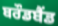
ਬਰੌਡਬੈਂਡ